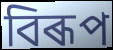
বিৰূপ